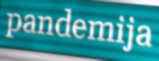
pandemija